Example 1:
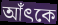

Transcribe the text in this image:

আঁৎকে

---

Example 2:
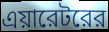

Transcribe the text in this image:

এয়ারেটরের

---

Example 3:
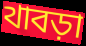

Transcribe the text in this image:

থাবড়া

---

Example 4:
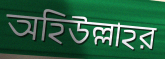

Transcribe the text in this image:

অহিউল্লাহর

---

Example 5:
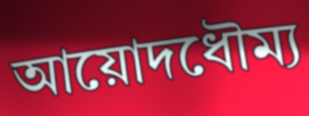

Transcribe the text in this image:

আয়োদধৌম্য